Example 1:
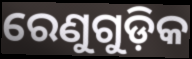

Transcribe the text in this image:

ରେଣୁଗୁଡ଼ିକ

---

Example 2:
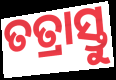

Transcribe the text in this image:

ତତ୍ରାସ୍ତୁ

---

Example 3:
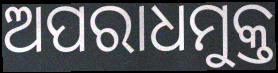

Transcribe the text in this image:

ଅପରାଧମୁକ୍ତ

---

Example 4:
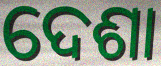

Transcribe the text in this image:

ଦେଶା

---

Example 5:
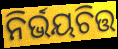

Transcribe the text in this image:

ନିର୍ଭୟଚିତ୍ତ